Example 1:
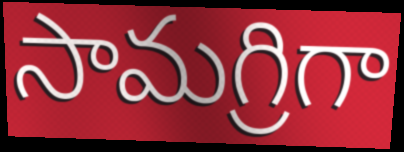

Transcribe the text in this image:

సామగ్రిగా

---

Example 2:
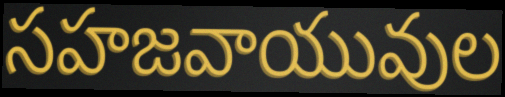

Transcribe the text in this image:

సహజవాయువుల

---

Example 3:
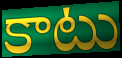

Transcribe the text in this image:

కాటు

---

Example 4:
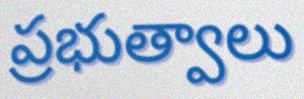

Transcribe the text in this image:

ప్రభుత్వాలు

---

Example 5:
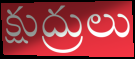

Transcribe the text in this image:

క్షుద్రులు